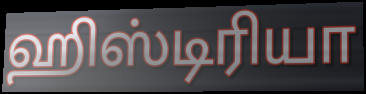
ஹிஸ்டிரியா